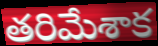
తరిమేశాక